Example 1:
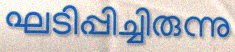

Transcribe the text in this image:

ഘടിപ്പിച്ചിരുന്നു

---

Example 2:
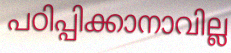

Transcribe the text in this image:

പഠിപ്പിക്കാനാവില്ല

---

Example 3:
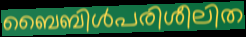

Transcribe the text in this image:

ബൈബിൾപരിശീലിത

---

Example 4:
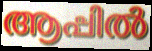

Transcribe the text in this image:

ആപ്പിൽ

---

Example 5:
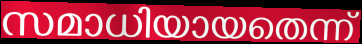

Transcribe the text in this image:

സമാധിയായതെന്ന്